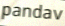
pandav